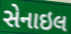
સેનાઇલ